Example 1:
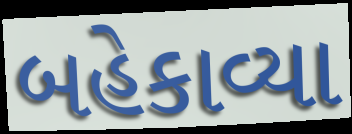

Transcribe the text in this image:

બહેકાવ્યા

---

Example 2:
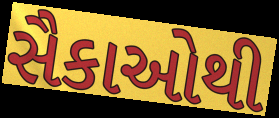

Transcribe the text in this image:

સૈકાઓથી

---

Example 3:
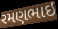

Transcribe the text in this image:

રમણભાઇ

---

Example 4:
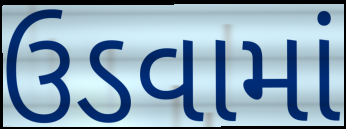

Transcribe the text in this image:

ઉડવામાં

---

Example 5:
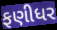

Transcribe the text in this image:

ફણીધર